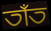
তাঁত